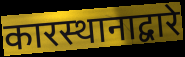
कारस्थानाद्वारे